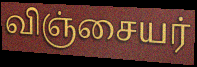
விஞ்சையர்